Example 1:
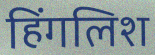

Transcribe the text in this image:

हिंगलिश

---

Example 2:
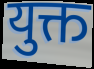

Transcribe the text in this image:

युक्त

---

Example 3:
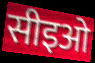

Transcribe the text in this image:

सीइओ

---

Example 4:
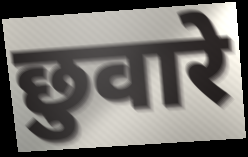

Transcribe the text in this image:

छुवारे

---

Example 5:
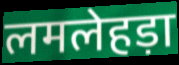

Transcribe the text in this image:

लमलेहड़ा